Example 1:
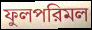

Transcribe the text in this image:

ফুলপরিমল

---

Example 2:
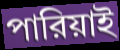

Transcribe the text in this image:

পারিয়াই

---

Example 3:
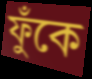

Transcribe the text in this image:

ফুঁকে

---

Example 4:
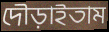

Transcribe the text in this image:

দৌড়াইতাম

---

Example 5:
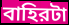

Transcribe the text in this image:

বাহিরটা